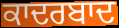
ਕਾਦਰਬਾਦ